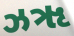
ઝૠ